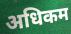
अधिकम